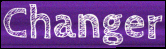
Changer